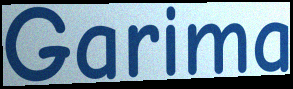
Garima